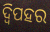
ଦ୍ୱିପହର